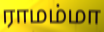
ராமம்மா